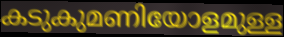
കടുകുമണിയോളമുള്ള